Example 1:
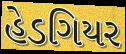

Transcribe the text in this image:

હેડગિયર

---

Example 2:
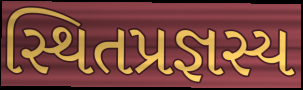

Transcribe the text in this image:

સ્થિતપ્રજ્ઞસ્ય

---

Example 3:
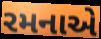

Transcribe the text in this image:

રમનાએ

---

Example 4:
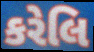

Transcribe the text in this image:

કરેલિ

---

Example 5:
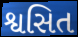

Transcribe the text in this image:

શ્વસિત